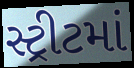
સ્ટ્રીટમાં